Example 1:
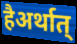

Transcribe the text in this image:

हैअर्थात्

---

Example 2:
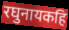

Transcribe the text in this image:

रघुनायकहि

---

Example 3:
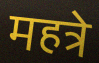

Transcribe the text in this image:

महत्रे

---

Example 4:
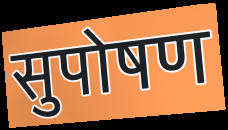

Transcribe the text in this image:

सुपोषण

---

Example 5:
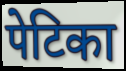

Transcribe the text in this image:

पेटिका